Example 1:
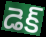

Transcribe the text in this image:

డెక్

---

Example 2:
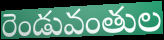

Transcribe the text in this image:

రెండువంతుల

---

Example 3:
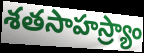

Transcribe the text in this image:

శతసాహస్ర్యాం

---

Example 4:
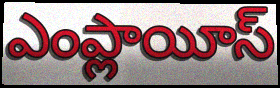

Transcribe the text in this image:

ఎంప్లాయీస్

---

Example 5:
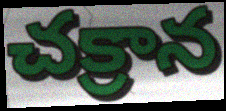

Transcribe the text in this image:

చక్రాన